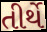
તીર્થે